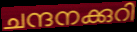
ചന്ദനക്കുറി